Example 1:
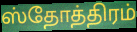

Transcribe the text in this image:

ஸ்தோத்திரம்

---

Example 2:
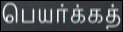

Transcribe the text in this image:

பெயர்க்கத்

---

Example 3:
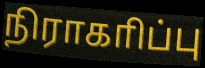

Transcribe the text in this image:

நிராகரிப்பு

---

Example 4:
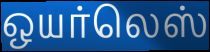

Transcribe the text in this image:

ஒயர்லெஸ்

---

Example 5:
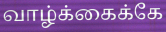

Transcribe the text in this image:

வாழ்க்கைக்கே